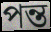
পন্ত